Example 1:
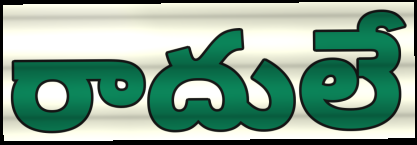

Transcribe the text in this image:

రాదులే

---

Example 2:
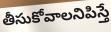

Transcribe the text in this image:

తీసుకోవాలనిపిస్తే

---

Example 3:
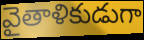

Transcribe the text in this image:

వైతాళికుడుగా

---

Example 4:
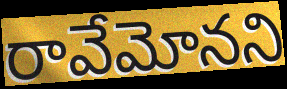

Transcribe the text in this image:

రావేమోనని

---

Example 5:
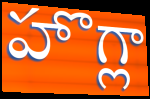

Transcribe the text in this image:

హొగ్లా